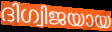
ദിഗ്വിജയായ